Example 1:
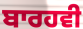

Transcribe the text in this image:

ਬਾਰਹਵੀ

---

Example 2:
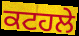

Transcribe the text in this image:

ਕਟਹਲੇ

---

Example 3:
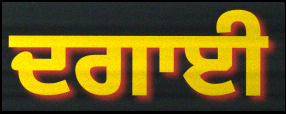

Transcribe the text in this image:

ਦਗਾਈ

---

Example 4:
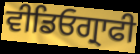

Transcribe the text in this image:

ਵੀਡਿਓਗ੍ਰਾਫੀ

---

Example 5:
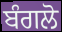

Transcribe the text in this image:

ਬੰਗਲੋ